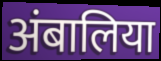
अंबालिया